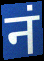
नं